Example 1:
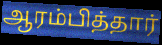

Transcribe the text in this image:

ஆரம்பித்தார்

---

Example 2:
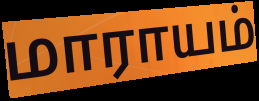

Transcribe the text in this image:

மாராயம்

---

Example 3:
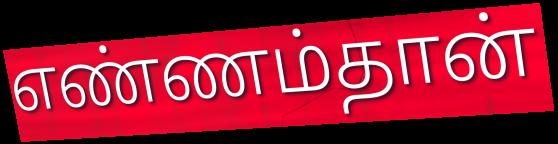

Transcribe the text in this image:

எண்ணம்தான்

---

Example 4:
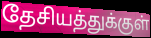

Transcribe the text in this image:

தேசியத்துக்குள்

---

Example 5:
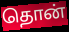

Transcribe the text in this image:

தொன்